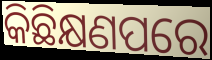
କିଛିକ୍ଷଣପରେ